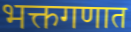
भक्तगणात